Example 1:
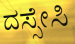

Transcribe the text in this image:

ದಸ್ಸೇಸಿ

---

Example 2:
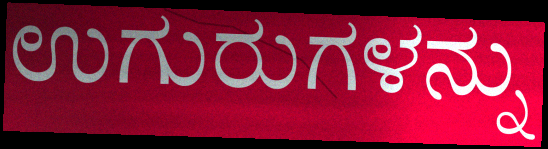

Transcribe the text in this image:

ಉಗುರುಗಳನ್ನು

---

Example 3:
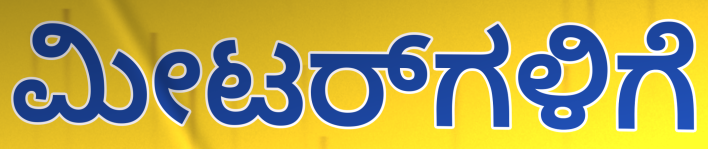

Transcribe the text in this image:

ಮೀಟರ್‌ಗಳಿಗೆ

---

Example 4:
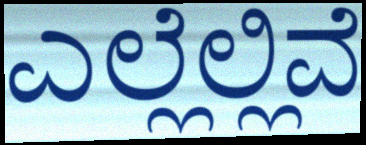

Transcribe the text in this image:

ಎಲ್ಲೆಲ್ಲಿವೆ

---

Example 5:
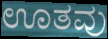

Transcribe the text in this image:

ಊತವು